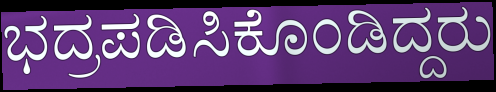
ಭದ್ರಪಡಿಸಿಕೊಂಡಿದ್ದರು